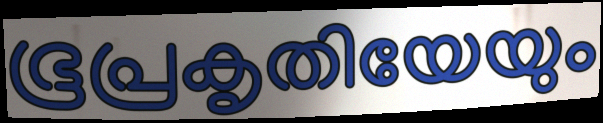
ഭൂപ്രകൃതിയേയും